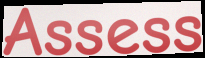
Assess